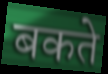
बकते